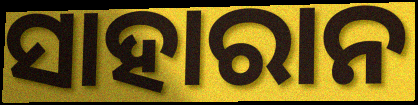
ସାହାରାନ